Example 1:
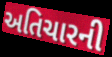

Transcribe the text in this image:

અતિચારની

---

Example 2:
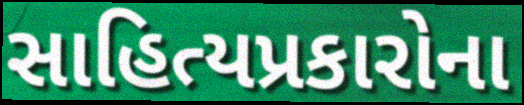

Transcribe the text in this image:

સાહિત્યપ્રકારોના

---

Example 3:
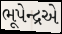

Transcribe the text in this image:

ભૂપેન્દ્રએ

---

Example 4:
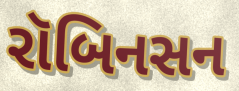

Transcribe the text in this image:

રૉબિનસન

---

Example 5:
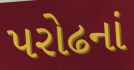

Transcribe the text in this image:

પરોઢનાં